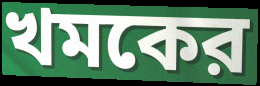
খমকের